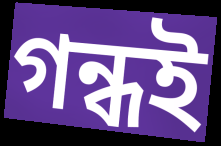
গন্ধই